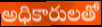
అధికారులతో